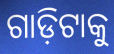
ଗାଡ଼ିଟାକୁ